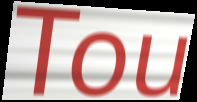
Tou